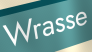
Wrasse